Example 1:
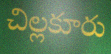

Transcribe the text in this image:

చిల్లకూరు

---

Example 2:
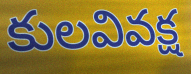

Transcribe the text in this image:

కులవివక్ష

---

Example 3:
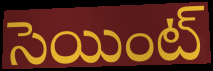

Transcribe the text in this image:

సెయింట్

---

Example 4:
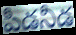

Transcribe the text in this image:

పీడనీడ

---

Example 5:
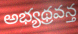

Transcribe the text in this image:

అభ్యథ్రవన్త